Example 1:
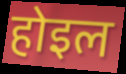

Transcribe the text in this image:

होइल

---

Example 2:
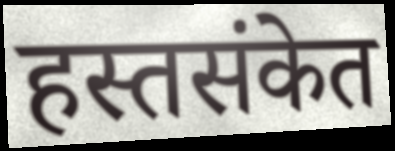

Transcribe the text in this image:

हस्तसंकेत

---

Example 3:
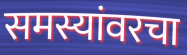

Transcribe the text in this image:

समस्यांवरचा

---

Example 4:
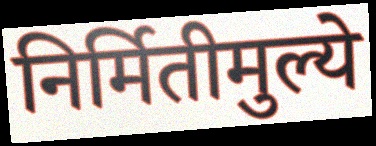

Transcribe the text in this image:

निर्मितीमुल्ये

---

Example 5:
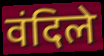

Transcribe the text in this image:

वंदिले